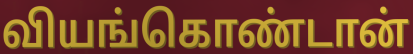
வியங்கொண்டான்